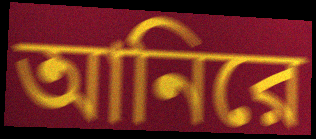
আনিরে